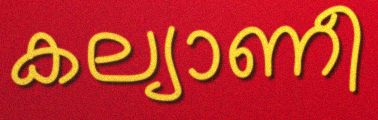
കല്യാണീ